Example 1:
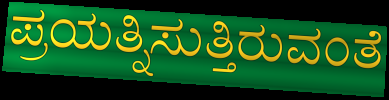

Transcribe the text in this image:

ಪ್ರಯತ್ನಿಸುತ್ತಿರುವಂತೆ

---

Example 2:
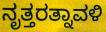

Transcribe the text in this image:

ನೃತ್ತರತ್ನಾವಳಿ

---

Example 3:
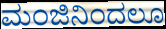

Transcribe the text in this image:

ಮಂಜಿನಿಂದಲೂ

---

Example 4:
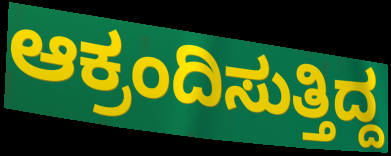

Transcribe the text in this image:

ಆಕ್ರಂದಿಸುತ್ತಿದ್ದ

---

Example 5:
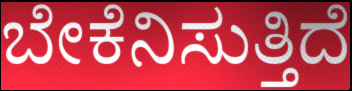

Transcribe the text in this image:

ಬೇಕೆನಿಸುತ್ತಿದೆ